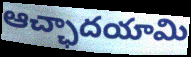
ఆచ్ఛాదయామి